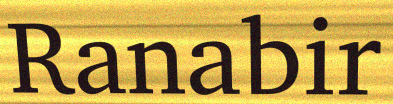
Ranabir